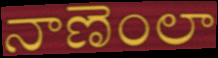
నాణెంలా